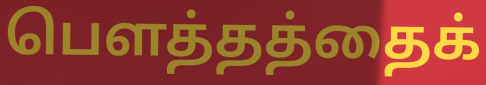
பௌத்தத்தைக்